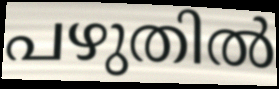
പഴുതിൽ